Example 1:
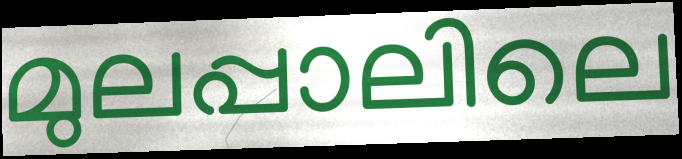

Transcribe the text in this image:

മുലപ്പാലിലെ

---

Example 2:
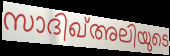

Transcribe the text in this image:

സാദിഖ്അലിയുടെ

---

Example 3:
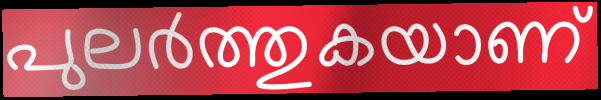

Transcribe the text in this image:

പുലർത്തുകയാണ്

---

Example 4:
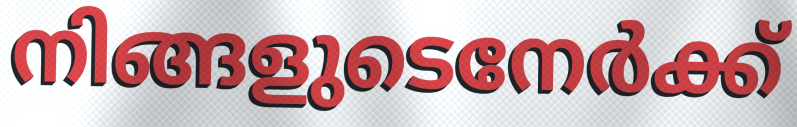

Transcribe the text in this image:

നിങ്ങളുടെനേർക്ക്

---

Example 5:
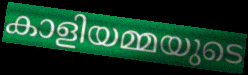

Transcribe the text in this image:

കാളിയമ്മയുടെ